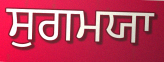
ਸੁਗਮਯਾ